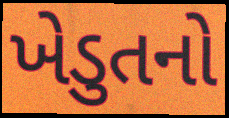
ખેડુતનો